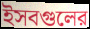
ইসবগুলের